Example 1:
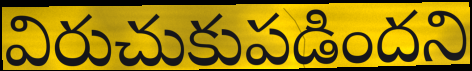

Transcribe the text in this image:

విరుచుకుపడిందని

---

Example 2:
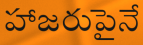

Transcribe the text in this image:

హాజరుపైనే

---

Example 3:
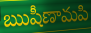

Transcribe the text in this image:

ఋషీణామపి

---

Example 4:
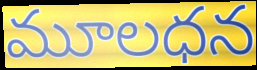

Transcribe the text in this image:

మూలధన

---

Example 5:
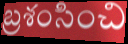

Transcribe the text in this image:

బ్రశంసించి